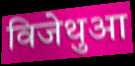
विजेथुआ